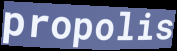
propolis